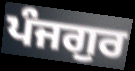
ਪੰਜਗੁਰ